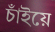
চাঁইয়ে